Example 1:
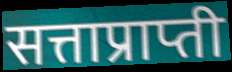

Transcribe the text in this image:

सत्ताप्राप्ती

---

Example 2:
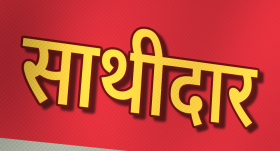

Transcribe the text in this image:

साथीदार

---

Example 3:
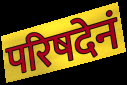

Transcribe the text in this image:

परिषदेनं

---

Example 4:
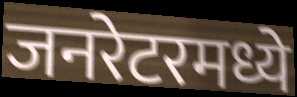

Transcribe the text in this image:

जनरेटरमध्ये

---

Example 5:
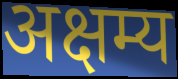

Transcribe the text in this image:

अक्षम्य